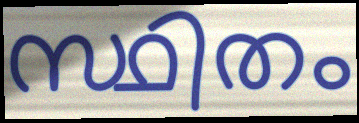
സ്ഥിതം